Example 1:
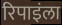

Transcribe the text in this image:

रिपाइंला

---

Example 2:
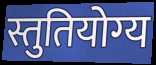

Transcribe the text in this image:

स्तुतियोग्य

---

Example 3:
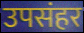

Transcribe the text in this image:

उपसंहर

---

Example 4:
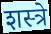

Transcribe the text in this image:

शस्त्रे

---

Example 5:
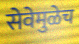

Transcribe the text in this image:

सेवेमुळेच